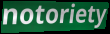
notoriety